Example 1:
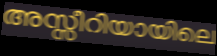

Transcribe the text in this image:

അസ്സീറിയായിലെ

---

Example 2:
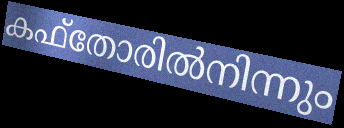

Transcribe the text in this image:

കഫ്തോരിൽനിന്നും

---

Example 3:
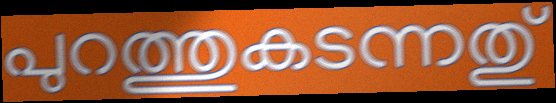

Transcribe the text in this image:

പുറത്തുകടന്നതു്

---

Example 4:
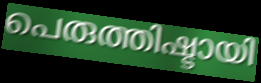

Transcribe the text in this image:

പെരുത്തിഷ്ടായി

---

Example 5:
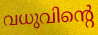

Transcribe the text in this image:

വധുവിന്റെ